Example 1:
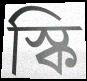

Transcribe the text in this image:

স্কি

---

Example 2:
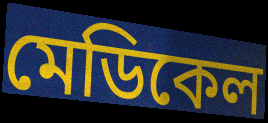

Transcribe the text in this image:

মেডিকেল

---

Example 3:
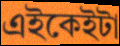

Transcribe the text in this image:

এইকেইটা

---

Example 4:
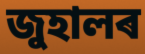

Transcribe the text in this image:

জুহালৰ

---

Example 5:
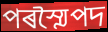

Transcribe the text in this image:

পৰস্মৈপদ